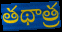
తథాత్ర